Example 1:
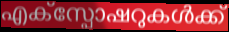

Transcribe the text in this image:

എക്സ്പോഷറുകൾക്ക്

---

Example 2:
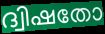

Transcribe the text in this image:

ദ്വിഷതോ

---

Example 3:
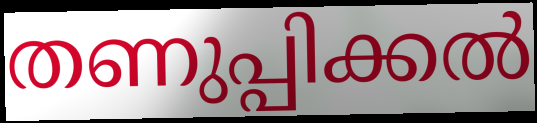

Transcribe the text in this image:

തണുപ്പിക്കൽ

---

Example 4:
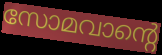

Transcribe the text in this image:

സോമവാന്റെ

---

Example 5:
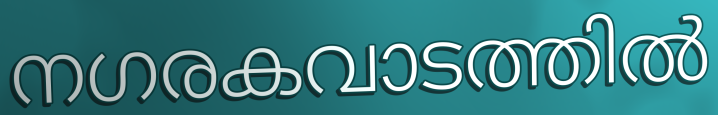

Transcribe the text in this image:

നഗരകവാടത്തിൽ